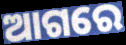
ଆଗରେ